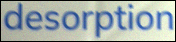
desorption